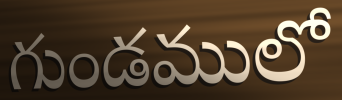
గుండములో